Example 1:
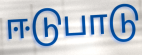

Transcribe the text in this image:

ஈடுபாடு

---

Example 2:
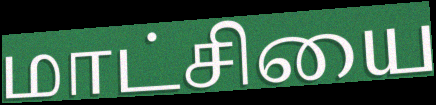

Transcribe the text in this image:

மாட்சியை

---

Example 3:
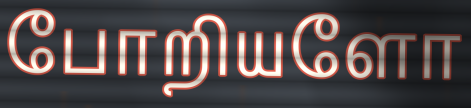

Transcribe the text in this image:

போறியளோ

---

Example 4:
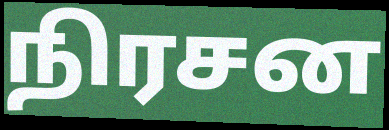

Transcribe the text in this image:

நிரசன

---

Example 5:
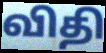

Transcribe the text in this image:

விதி